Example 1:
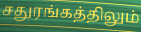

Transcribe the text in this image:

சதுரங்கத்திலும்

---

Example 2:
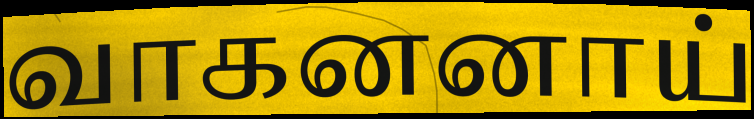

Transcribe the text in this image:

வாகனனாய்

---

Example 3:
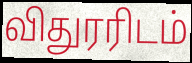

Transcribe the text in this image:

விதுரரிடம்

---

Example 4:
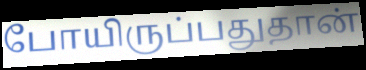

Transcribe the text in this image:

போயிருப்பதுதான்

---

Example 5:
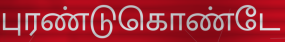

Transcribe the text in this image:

புரண்டுகொண்டே